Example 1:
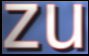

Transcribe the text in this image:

zu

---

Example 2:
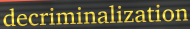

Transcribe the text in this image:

decriminalization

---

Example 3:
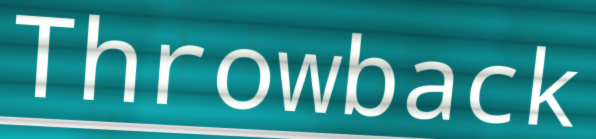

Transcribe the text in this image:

Throwback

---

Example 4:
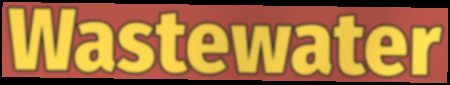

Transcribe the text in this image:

Wastewater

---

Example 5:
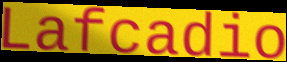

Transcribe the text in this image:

Lafcadio